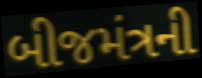
બીજમંત્રની